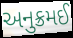
અનુક્રમઈ